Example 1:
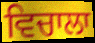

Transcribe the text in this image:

ਵਿਚਾਲਾ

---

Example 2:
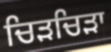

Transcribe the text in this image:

ਚਿੜਚਿੜਾ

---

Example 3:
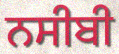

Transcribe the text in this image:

ਨਸੀਬੀ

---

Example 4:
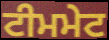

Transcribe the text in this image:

ਟੀਮਮੇਟ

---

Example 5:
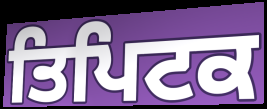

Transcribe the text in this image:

ਤਿਪਿਟਕ